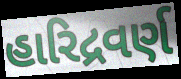
હારિદ્રવર્ણ